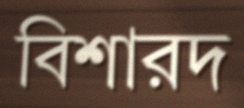
বিশারদ